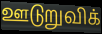
ஊடுறுவிக்